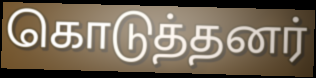
கொடுத்தனர்